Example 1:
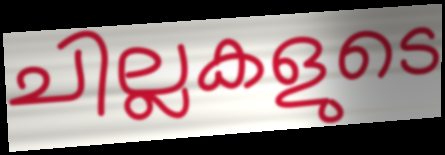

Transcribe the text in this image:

ചില്ലകളുടെ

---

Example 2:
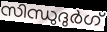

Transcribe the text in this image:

സിന്ധുദുർഗ്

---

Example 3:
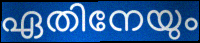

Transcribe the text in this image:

ഏതിനേയും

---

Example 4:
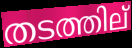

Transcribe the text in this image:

തടത്തില്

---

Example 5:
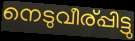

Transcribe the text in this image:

നെടുവീര്പ്പിട്ടു